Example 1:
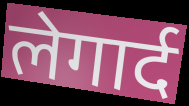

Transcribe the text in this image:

लेगार्द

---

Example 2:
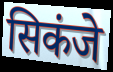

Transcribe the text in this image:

सिकंजे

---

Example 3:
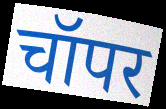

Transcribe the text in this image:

चॉपर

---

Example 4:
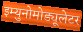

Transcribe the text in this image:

इम्युनोमोड्यूलेटर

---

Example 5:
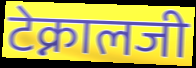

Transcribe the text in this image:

टेक्नालजी